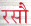
रसौ